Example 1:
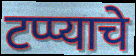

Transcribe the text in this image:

टप्प्याचे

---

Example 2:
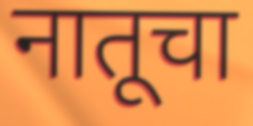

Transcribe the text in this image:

नातूचा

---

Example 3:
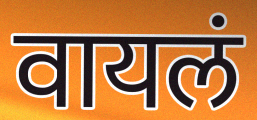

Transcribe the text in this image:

वायलं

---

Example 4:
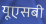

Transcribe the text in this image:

यूएसबी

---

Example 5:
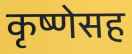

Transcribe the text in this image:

कृष्णेसह